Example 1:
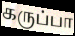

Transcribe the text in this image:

கருப்பா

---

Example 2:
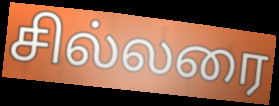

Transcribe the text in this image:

சில்லரை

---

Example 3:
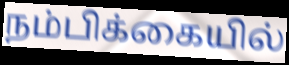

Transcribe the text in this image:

நம்பிக்கையில்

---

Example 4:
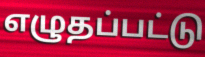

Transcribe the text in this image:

எழுதப்பட்டு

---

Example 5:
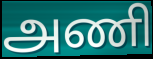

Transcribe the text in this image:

அணி